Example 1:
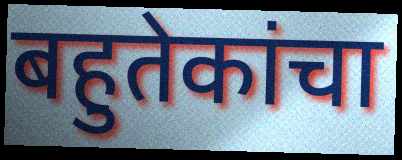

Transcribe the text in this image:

बहुतेकांचा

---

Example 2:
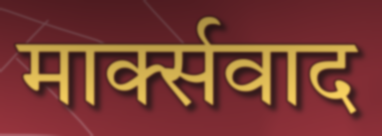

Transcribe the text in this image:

मार्क्‍सवाद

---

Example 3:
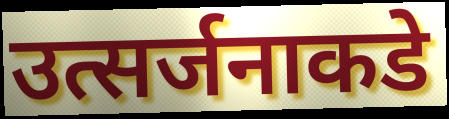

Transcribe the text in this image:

उत्सर्जनाकडे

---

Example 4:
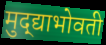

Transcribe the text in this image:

मुद्द्याभोवती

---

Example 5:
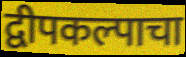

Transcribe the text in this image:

द्वीपकल्पाचा